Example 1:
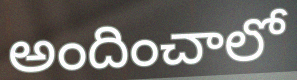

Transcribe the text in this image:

అందించాలో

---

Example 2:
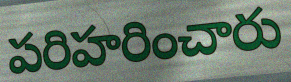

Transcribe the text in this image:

పరిహరించారు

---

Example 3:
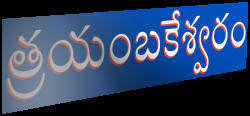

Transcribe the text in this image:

త్రయంబకేశ్వరం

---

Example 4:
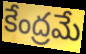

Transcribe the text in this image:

కేంద్రమే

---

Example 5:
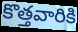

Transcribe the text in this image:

కొత్తవారికి